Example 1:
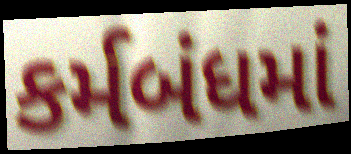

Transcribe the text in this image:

કર્મબંધમાં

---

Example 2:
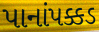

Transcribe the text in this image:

પાનાંપક્કડ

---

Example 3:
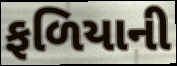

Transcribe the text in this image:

ફળિયાની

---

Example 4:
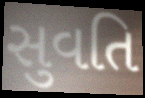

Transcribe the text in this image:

સુવતિ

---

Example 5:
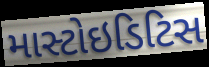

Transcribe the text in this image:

માસ્ટોઇડિટિસ